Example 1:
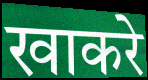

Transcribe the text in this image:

खाकरे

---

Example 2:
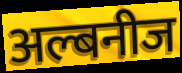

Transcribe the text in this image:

अल्‍बनीज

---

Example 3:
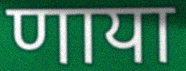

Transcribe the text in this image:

णाया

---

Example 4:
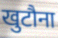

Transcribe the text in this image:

खुटौना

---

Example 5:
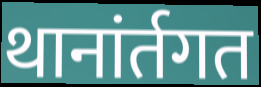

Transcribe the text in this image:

थानांर्तगत